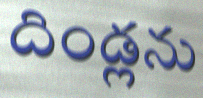
దిండ్లను